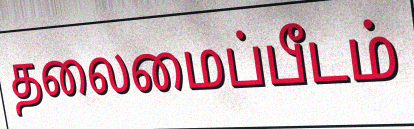
தலைமைப்பீடம்